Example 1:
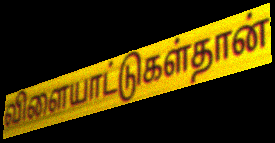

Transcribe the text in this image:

விளையாட்டுகள்தான்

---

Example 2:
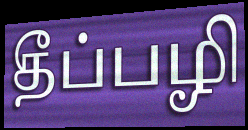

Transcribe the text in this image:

தீப்பழி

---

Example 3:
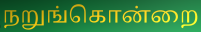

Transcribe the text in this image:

நறுங்கொன்றை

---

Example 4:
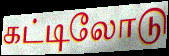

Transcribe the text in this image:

கட்டிலோடு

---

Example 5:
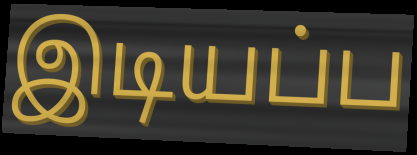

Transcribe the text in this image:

இடியப்ப